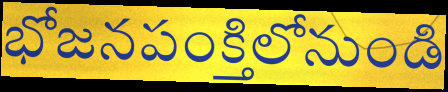
భోజనపంక్తిలోనుండి